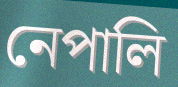
নেপালি